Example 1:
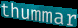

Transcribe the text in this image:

thummar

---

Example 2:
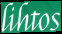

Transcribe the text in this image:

lihtos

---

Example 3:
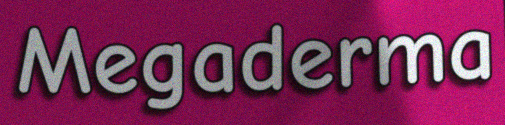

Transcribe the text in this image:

Megaderma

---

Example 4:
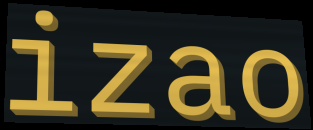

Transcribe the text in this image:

izao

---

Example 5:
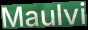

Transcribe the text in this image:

Maulvi